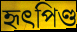
হৃৎপিণ্ড